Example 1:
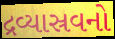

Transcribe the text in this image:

દ્રવ્યાસ્રવનો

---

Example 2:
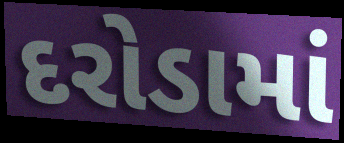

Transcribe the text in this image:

દરોડામાં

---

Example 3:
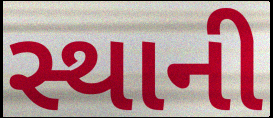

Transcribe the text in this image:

સ્થાની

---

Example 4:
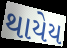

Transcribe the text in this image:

થાયેય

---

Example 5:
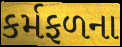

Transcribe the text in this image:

કર્મફળના